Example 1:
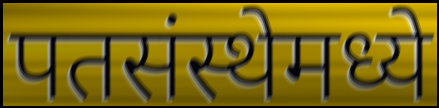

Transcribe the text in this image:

पतसंस्थेमध्ये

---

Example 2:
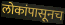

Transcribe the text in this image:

लोकांपासूनच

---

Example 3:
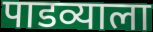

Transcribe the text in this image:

पाडव्याला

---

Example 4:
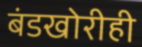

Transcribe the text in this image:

बंडखोरीही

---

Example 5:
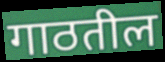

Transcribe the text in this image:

गाठतील